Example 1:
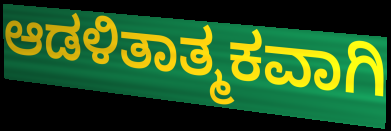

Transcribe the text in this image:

ಆಡಳಿತಾತ್ಮಕವಾಗಿ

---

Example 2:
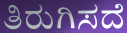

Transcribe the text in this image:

ತಿರುಗಿಸದೆ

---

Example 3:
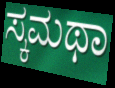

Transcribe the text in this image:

ಸ್ಕಮಥಾ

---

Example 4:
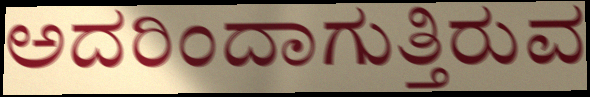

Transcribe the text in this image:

ಅದರಿಂದಾಗುತ್ತಿರುವ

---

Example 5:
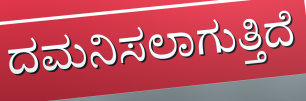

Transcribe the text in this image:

ದಮನಿಸಲಾಗುತ್ತಿದೆ